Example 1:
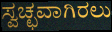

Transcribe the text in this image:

ಸ್ವಚ್ಛವಾಗಿರಲು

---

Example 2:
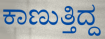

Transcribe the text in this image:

ಕಾಣುತ್ತಿದ್ದ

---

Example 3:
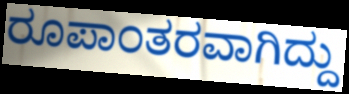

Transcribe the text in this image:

ರೂಪಾಂತರವಾಗಿದ್ದು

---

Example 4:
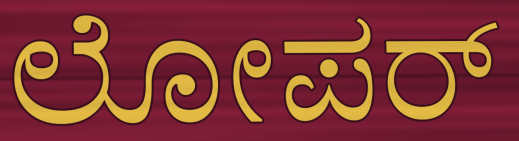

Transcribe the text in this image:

ಲೋಪರ್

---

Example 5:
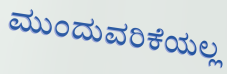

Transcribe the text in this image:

ಮುಂದುವರಿಕೆಯಲ್ಲ